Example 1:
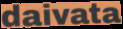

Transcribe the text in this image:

daivata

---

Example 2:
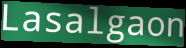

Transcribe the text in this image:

Lasalgaon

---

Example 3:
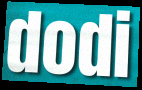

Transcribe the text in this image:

dodi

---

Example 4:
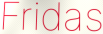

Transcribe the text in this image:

Fridas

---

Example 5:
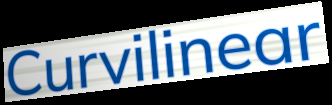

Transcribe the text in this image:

Curvilinear